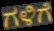
ಗಳಿಗೆ